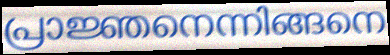
പ്രാജ്ഞനെന്നിങ്ങനെ